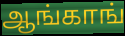
ஆங்காங்